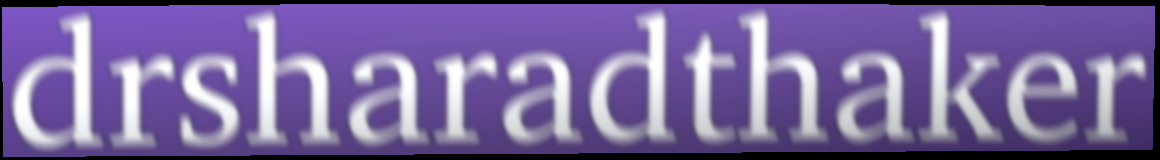
drsharadthaker